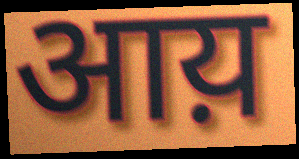
आय़